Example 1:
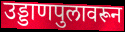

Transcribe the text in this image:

उड्डाणपुलावरून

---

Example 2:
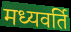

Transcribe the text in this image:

मध्यवर्ति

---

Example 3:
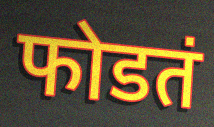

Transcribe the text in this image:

फोडतं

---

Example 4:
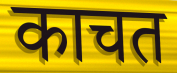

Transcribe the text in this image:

काचत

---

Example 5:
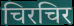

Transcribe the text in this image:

चिरचिर